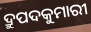
ଦ୍ରୁପଦକୁମାରୀ